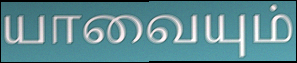
யாவையும்